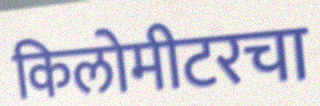
किलोमीटरचा